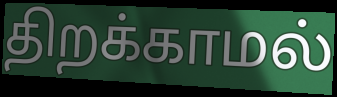
திறக்காமல்